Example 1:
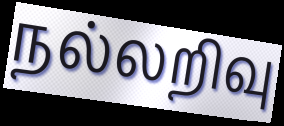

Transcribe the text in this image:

நல்லறிவு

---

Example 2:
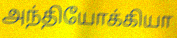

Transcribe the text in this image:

அந்தியோக்கியா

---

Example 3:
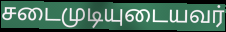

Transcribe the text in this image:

சடைமுடியுடையவர்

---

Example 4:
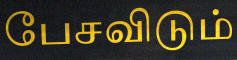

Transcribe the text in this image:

பேசவிடும்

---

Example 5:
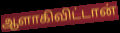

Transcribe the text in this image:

ஆளாகிவிட்டான்